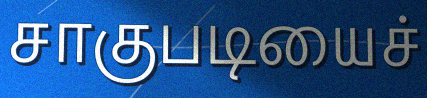
சாகுபடியைச்